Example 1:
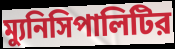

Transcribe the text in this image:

ম্যুনিসিপালিটির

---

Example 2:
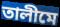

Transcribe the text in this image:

তালীমে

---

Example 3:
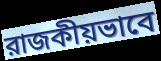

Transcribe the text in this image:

রাজকীয়ভাবে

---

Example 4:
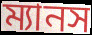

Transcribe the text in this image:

ম্যানস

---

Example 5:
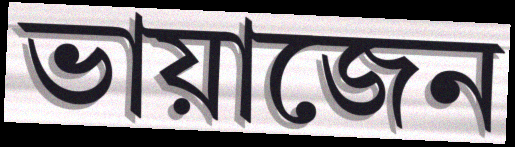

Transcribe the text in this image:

ভায়াজেন